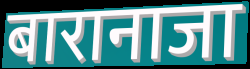
बारानाजा